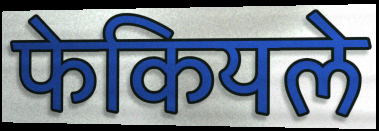
फेकियले